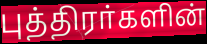
புத்திரர்களின்